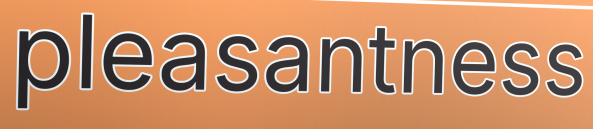
pleasantness